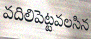
వదిలిపెట్టవలసిన